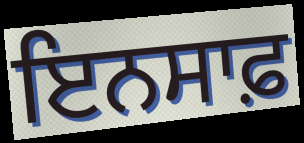
ਇਨਸਾਫ਼